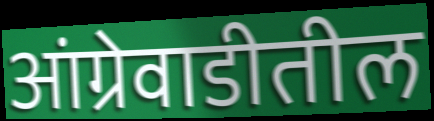
आंग्रेवाडीतील